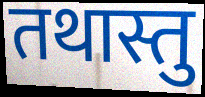
तथास्तु